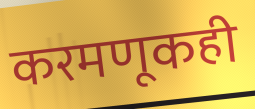
करमणूकही